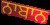
ਨਾਬਾਨ